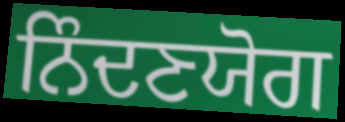
ਨਿੰਦਣਯੋਗ